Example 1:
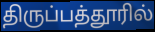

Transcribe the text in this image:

திருப்பத்தூரில்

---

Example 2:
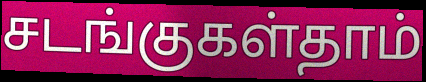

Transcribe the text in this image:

சடங்குகள்தாம்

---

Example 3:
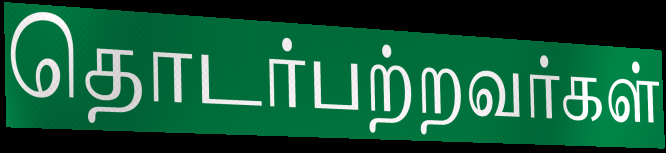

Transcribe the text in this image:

தொடர்பற்றவர்கள்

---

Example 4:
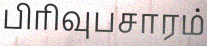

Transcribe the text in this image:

பிரிவுபசாரம்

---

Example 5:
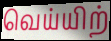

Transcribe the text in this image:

வெய்யிற்